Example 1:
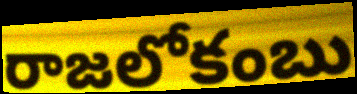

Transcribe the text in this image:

రాజలోకంబు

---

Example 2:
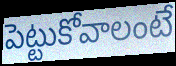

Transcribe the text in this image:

పెట్టుకోవాలంటే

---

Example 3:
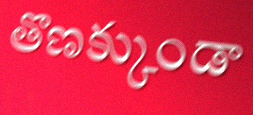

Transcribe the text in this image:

తొణక్కుండా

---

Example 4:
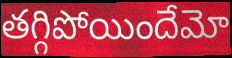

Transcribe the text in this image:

తగ్గిపోయిందేమో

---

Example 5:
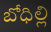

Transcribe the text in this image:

బోధిల్లి